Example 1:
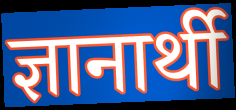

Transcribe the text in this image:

ज्ञानार्थी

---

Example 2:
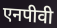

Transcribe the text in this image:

एनपीवी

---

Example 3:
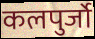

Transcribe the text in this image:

कलपुर्जो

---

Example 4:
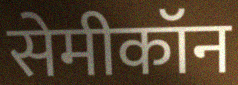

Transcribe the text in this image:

सेमीकॉन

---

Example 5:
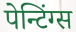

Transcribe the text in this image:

पेन्टिंग्स